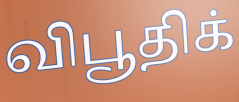
விபூதிக்